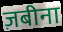
ज़बीना